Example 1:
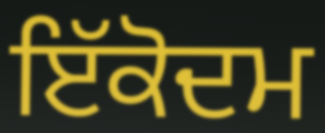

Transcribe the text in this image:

ਇੱਕੋਦਮ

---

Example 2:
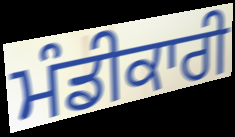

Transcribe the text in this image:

ਮੰਡੀਕਾਰੀ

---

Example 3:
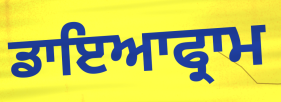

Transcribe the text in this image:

ਡਾਇਆਫ੍ਰਾਮ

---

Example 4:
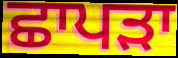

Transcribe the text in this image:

ਛਾਪੜਾ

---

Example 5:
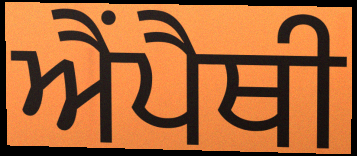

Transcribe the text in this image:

ਐਂਪੈਥੀ